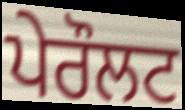
ਪੇਰੌਲਟ